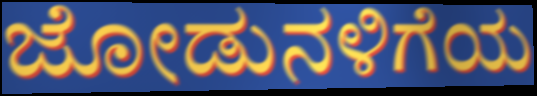
ಜೋಡುನಳಿಗೆಯ